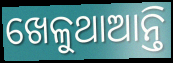
ଖେଳୁଥାଆନ୍ତି